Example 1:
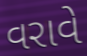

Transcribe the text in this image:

વરાવે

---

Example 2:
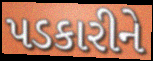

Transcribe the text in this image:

પડકારીને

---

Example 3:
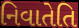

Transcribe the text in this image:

નિવાતેતિ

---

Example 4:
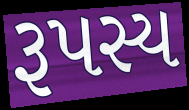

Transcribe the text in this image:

રૂપસ્ય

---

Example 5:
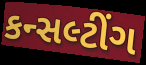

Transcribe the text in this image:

કન્સલ્ટીંગ